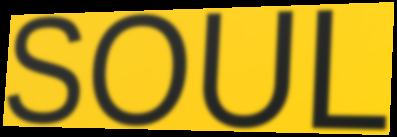
SOUL